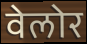
वेलोर